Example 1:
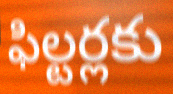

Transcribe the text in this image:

ఫిల్టర్లకు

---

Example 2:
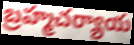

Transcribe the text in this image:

బ్రహ్మచర్యాయ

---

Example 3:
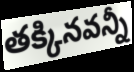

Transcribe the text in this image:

తక్కినవన్నీ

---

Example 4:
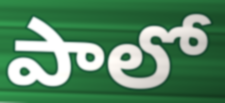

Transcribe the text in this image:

పాలో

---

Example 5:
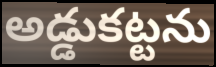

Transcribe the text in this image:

అడ్డుకట్టను